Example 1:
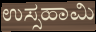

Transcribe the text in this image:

ಉಸ್ಸಹಾಮಿ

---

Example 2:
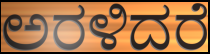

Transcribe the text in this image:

ಅರಳಿದರೆ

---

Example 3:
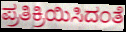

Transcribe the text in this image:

ಪ್ರತಿಕ್ರಿಯಿಸಿದಂತೆ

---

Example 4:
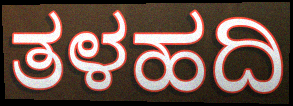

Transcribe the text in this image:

ತಳಹದಿ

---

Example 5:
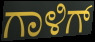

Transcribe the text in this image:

ಗಾಳಿಗ್